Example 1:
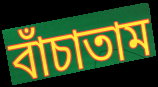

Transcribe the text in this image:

বাঁচাতাম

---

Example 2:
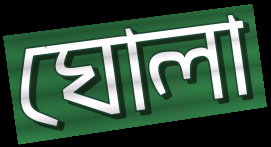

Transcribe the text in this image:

ঘোলা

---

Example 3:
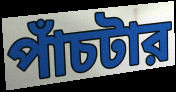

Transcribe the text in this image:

পাঁচটার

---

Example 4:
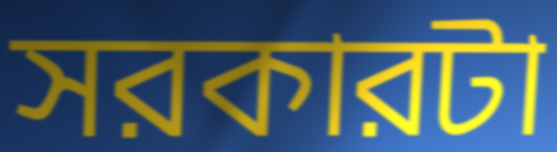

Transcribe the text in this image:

সরকারটা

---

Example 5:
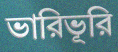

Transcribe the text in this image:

ভারিভূরি